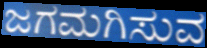
ಜಗಮಗಿಸುವ